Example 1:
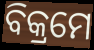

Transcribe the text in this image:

ବିକ୍ରମେ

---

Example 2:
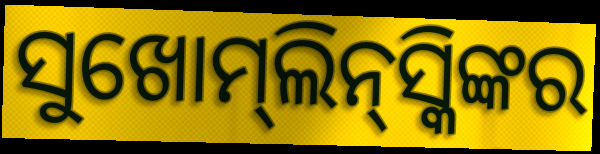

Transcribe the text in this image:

ସୁଖୋମ୍‍ଲିନ୍‍ସ୍କିଙ୍କର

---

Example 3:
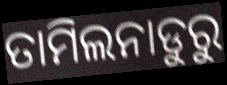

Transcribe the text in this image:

ତାମିଲନାଡୁରୁ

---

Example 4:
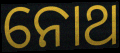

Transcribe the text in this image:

ନୋଥ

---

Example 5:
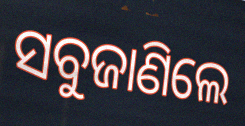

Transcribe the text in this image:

ସବୁଜାଣିଲେ